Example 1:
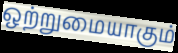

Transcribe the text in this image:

ஒற்றுமையாகும்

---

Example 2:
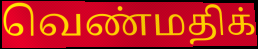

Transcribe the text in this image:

வெண்மதிக்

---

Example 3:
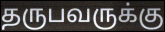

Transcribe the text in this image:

தருபவருக்கு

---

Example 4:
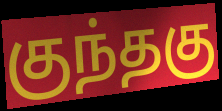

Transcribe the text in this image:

குந்தகு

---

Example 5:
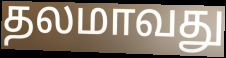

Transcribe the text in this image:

தலமாவது